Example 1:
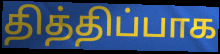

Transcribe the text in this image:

தித்திப்பாக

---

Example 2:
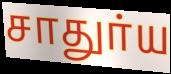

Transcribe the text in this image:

சாதுர்ய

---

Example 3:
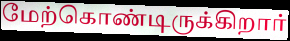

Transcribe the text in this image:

மேற்கொண்டிருக்கிறார்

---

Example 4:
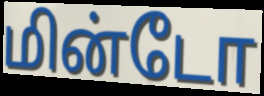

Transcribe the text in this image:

மின்டோ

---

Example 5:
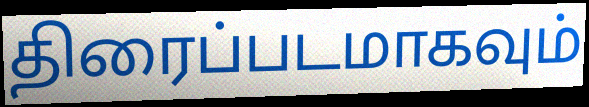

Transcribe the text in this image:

திரைப்படமாகவும்